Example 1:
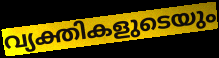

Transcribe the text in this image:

വ്യക്തികളുടെയും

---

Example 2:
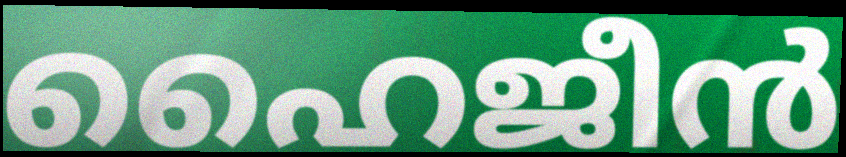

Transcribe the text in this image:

ഹൈജീൻ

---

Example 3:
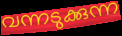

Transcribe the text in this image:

വന്നടുക്കുന്ന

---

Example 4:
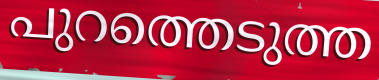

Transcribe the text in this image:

പുറത്തെടുത്ത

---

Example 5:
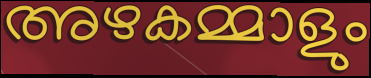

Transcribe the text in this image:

അഴകമ്മാളും